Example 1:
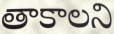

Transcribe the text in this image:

తాకాలని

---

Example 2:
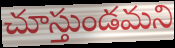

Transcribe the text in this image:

చూస్తుండమని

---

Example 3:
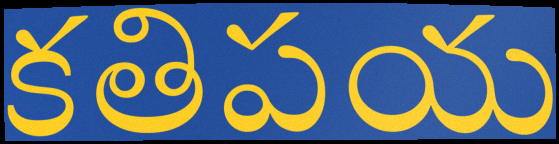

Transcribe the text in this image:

కతిపయ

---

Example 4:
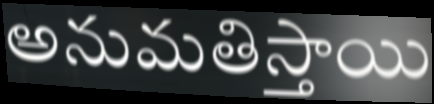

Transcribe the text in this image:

అనుమతిస్తాయి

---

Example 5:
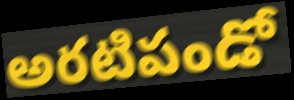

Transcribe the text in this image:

అరటిపండో